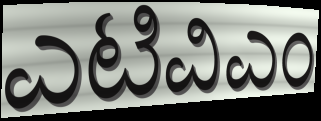
ಎಟಿವಿಎಂ